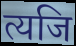
त्यजि